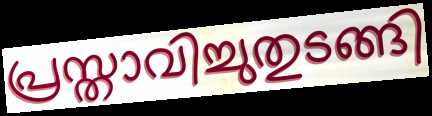
പ്രസ്താവിച്ചുതുടങ്ങി